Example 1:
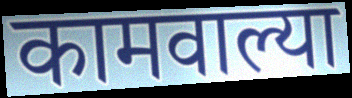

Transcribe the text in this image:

कामवाल्या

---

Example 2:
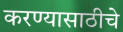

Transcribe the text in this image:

करण्यासाठीचे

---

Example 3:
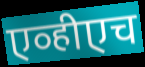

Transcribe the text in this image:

एव्हीएच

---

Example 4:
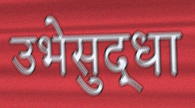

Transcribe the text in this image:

उभेसुद्धा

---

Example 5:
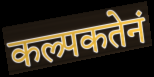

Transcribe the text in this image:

कल्पकतेनं